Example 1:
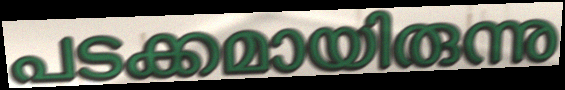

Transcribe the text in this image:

പടക്കമായിരുന്നു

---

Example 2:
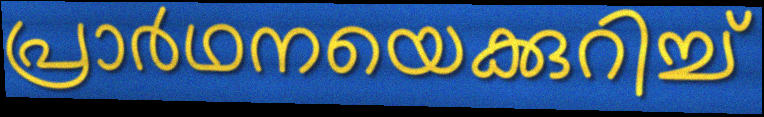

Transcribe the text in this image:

പ്രാർഥനയെക്കുറിച്ച്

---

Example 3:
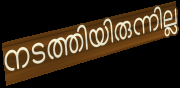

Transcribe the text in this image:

നടത്തിയിരുന്നില്ല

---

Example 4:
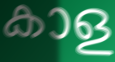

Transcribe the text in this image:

കാള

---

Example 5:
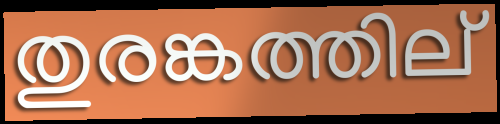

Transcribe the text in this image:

തുരങ്കത്തില്